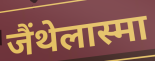
जैंथेलास्मा